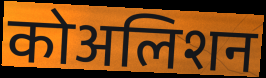
कोअलिशन